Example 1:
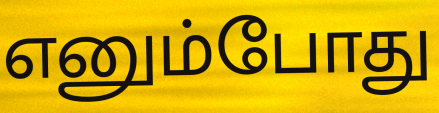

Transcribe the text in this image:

எனும்போது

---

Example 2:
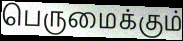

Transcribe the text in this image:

பெருமைக்கும்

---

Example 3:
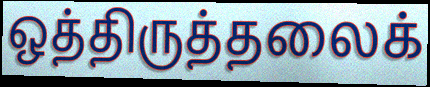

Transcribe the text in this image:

ஒத்திருத்தலைக்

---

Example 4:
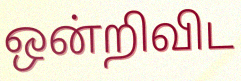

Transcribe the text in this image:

ஒன்றிவிட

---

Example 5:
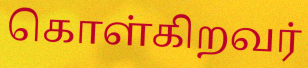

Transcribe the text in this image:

கொள்கிறவர்